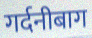
गर्दनीबाग